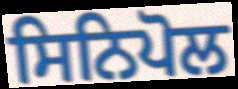
ਸਿਨਿਪੋਲ